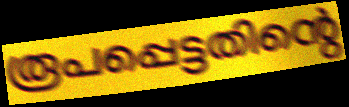
രൂപപ്പെട്ടതിന്റെ